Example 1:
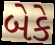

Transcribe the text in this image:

બેકે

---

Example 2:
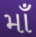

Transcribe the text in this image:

માઁ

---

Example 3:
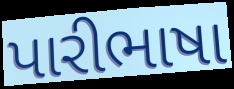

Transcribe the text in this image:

પારીભાષા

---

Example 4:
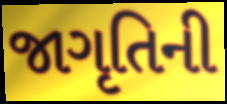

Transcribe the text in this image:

જાગૃતિની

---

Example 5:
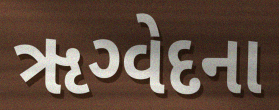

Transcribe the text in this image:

ૠગ્વેદના